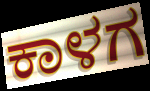
ಕಾಳಗ